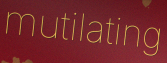
mutilating